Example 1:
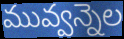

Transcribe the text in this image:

మువ్వన్నెల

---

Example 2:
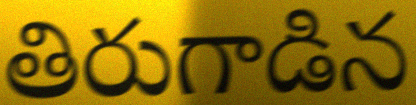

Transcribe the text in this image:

తిరుగాడిన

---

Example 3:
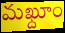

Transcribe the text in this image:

మఖ్దూం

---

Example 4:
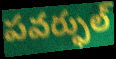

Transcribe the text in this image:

పవర్ఫుల్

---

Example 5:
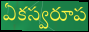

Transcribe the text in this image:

ఏకస్వరూప